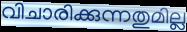
വിചാരിക്കുന്നതുമില്ല